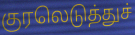
குரலெடுத்துச்